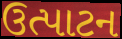
ઉત્પાટન